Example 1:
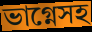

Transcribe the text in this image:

ভাগ্নেসহ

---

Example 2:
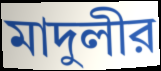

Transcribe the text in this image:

মাদুলীর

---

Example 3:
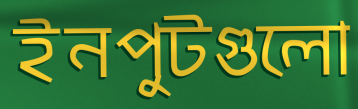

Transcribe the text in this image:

ইনপুটগুলো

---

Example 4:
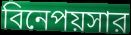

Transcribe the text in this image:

বিনেপয়সার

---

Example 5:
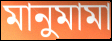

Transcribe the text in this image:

মানুমামা